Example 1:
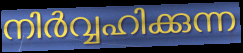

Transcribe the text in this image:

നിർവ്വഹിക്കുന്ന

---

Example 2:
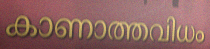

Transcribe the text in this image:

കാണാത്തവിധം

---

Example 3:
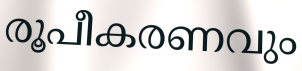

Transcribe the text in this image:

രൂപീകരണവും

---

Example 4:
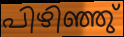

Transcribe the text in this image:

പിഴിഞ്ഞു്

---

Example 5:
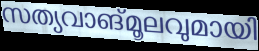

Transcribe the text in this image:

സത്യവാങ്മൂലവുമായി